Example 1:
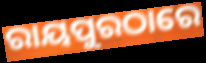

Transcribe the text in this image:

ରାୟପୁରଠାରେ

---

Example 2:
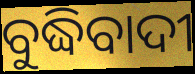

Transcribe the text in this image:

ବୁଦ୍ଧିବାଦୀ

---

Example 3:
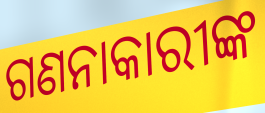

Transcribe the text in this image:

ଗଣନାକାରୀଙ୍କ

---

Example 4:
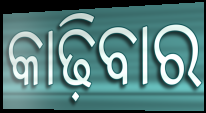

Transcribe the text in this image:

କାଢ଼ିବାର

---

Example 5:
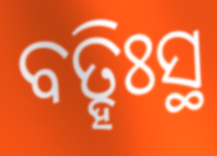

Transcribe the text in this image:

ବତ୍ହିଃସ୍ଥ